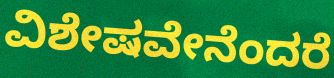
ವಿಶೇಷವೇನೆಂದರೆ